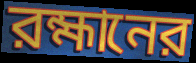
রহ্মানের